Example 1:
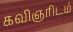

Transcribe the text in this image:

கவிஞரிடம்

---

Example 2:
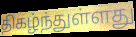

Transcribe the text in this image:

திகழ்ந்துள்ளது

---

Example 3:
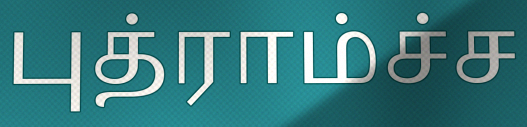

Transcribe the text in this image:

புத்ராம்ச்ச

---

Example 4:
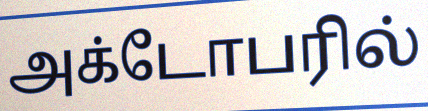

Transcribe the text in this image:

அக்டோபரில்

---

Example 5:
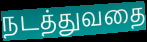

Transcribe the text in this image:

நடத்துவதை